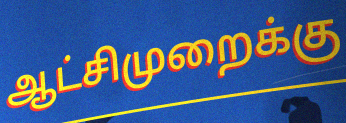
ஆட்சிமுறைக்கு